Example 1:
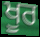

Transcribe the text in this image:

ਖੂਰ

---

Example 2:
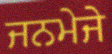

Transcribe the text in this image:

ਜਨਮੇਜੇ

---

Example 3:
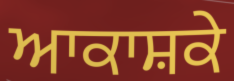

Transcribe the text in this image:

ਆਕਾਸ਼ਕੇ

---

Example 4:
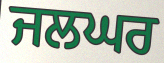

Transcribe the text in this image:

ਜਲਘਰ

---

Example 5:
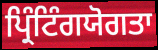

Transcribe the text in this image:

ਪ੍ਰਿੰਟਿੰਗਯੋਗਤਾ